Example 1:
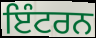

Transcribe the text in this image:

ਇੰਟਰਨ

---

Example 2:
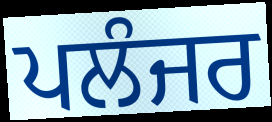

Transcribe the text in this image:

ਪਲੰਜਰ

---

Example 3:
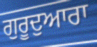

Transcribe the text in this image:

ਗੁਰੂਦੁਆਰਾ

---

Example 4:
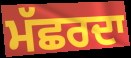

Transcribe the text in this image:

ਮੱਛਰਦਾ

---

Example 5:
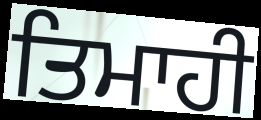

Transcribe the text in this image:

ਤਿਮਾਹੀ